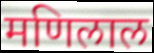
मणिलाल